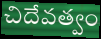
చిదేవత్వం